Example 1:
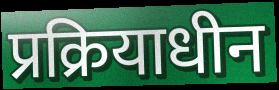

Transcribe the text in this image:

प्रक्रियाधीन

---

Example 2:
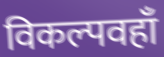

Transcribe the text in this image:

विकल्पवहाँ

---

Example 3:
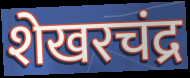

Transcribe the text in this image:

शेखरचंद्र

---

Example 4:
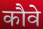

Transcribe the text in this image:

कौवे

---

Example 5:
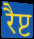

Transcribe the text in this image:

रैप्ट